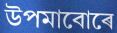
উপমাবোৰে